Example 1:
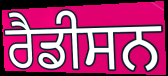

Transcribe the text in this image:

ਰੈਡੀਸਨ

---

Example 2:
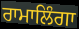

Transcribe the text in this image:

ਰਾਮਾਲਿੰਗਾ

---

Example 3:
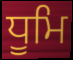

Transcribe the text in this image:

ਧੂਮਿ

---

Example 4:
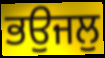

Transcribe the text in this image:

ਭਉਜਲੁ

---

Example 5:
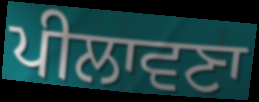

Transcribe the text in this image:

ਪੀਲਾਵਣਾ